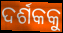
ଦର୍ଶକକୁ